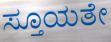
ಸ್ತೂಯತೇ